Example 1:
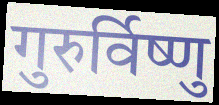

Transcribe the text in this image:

गुरुर्विष्णु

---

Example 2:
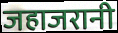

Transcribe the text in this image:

जहाजरानी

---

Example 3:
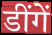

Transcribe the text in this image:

डींगें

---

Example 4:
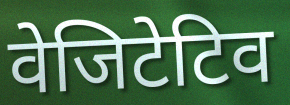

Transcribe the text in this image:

वेजिटेटिव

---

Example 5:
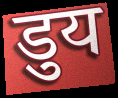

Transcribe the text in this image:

डुय